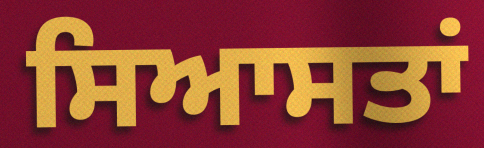
ਸਿਆਸਤਾਂ